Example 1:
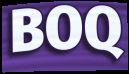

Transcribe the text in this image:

BOQ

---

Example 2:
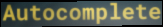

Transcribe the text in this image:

Autocomplete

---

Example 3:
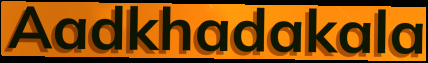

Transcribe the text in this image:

Aadkhadakala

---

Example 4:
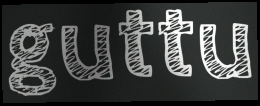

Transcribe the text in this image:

guttu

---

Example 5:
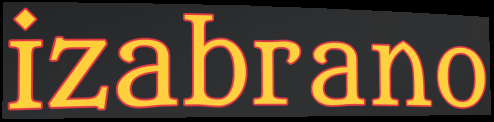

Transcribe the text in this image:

izabrano